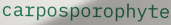
carposporophyte